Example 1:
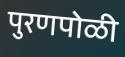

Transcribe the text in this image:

पुरणपोळी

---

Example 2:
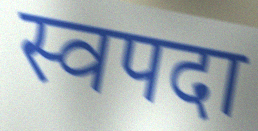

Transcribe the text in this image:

स्वपदा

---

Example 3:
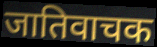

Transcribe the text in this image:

जातिवाचक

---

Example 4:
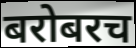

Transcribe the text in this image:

बरोबरच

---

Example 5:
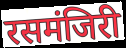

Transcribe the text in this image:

रसमंजिरी